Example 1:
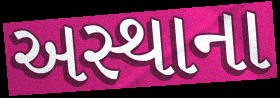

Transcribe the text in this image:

અસ્થાના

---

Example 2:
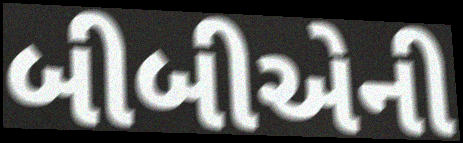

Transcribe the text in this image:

બીબીએની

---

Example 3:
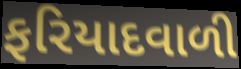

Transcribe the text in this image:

ફરિયાદવાળી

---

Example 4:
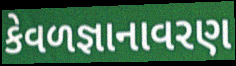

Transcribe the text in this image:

કેવળજ્ઞાનાવરણ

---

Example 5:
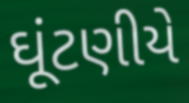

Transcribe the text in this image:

ઘૂંટણીયે